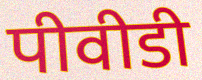
पीवीडी